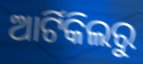
ଆର୍ଟିକିଲରୁ